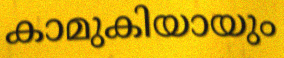
കാമുകിയായും